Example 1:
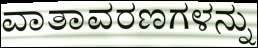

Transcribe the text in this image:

ವಾತಾವರಣಗಳನ್ನು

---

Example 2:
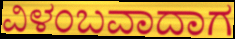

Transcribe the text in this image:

ವಿಳಂಬವಾದಾಗ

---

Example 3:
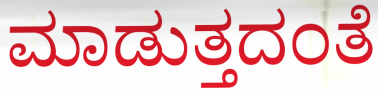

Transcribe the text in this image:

ಮಾಡುತ್ತದಂತೆ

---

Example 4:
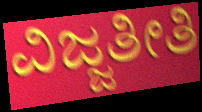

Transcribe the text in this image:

ವಿಜ್ಜತೀತಿ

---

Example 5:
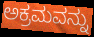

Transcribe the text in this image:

ಅಕ್ರಮವನ್ನು